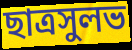
ছাত্রসুলভ